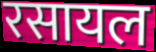
रसायल